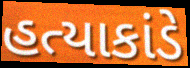
હત્યાકાંડે